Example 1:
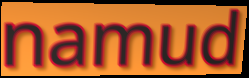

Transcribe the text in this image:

namud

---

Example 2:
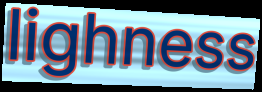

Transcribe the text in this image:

lighness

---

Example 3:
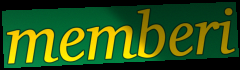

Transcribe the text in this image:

memberi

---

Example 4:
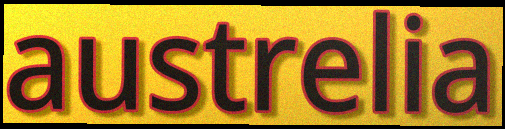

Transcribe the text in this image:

austrelia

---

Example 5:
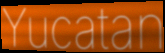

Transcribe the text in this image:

Yucatan